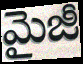
మైజీ